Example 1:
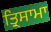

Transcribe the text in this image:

ਤ੍ਰਿਸਾਮਾ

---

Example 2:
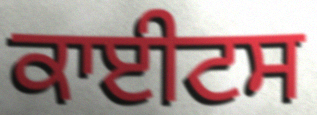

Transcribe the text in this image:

ਕਾਈਟਸ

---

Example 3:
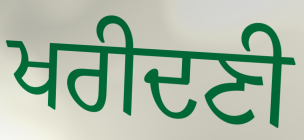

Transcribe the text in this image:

ਖਰੀਦਣੀ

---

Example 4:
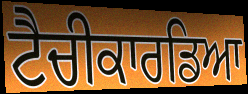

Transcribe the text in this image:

ਟੈਚੀਕਾਰਡਿਆ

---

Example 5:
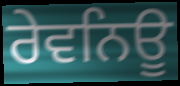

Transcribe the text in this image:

ਰੇਵਨਿਊ